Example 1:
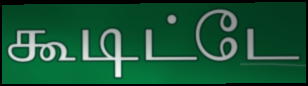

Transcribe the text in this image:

கூடிட்டே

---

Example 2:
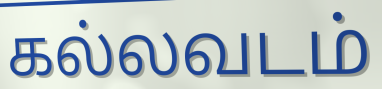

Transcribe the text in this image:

கல்லவடம்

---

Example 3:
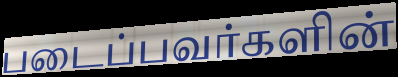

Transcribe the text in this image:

படைப்பவர்களின்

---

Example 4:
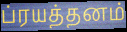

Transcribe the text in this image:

ப்ரயத்தனம்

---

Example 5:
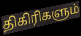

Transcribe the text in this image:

திகிரிகளும்